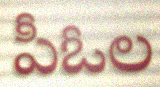
పీఓల